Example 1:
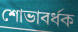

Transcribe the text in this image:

শোভাবর্ধক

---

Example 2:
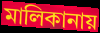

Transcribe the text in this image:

মালিকানায়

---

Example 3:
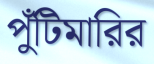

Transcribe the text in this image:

পুঁটিমারির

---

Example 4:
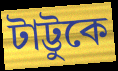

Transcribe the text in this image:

টাট্টুকে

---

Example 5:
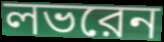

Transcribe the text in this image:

লভরেন